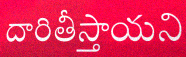
దారితీస్తాయని